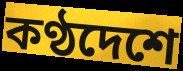
কণ্ঠদেশে